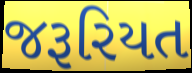
જરૂરિયત